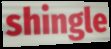
shingle